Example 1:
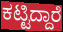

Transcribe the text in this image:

ಕಟ್ಟಿದ್ದಾರೆ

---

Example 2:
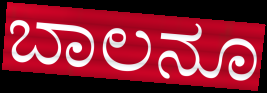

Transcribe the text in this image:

ಬಾಲನೂ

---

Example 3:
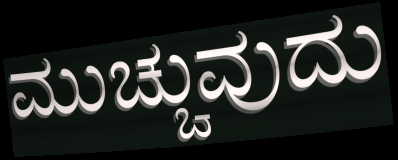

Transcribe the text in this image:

ಮುಚ್ಚುವುದು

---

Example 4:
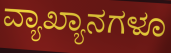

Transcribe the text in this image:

ವ್ಯಾಖ್ಯಾನಗಳೂ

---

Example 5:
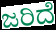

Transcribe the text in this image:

ಜರಿದೆ